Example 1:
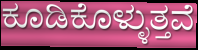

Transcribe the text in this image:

ಕೂಡಿಕೊಳ್ಳುತ್ತವೆ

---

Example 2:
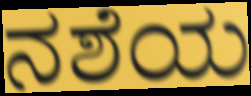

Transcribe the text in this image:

ನಶೆಯ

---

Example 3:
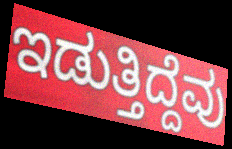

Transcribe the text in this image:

ಇಡುತ್ತಿದ್ದೆವು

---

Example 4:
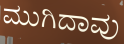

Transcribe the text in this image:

ಮುಗಿದಾವು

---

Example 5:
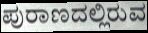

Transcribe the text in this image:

ಪುರಾಣದಲ್ಲಿರುವ